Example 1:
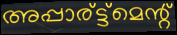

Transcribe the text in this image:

അപ്പാര്ട്ട്മെന്റ്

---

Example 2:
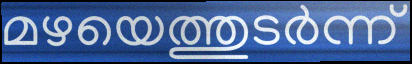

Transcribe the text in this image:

മഴയെത്തുടർന്ന്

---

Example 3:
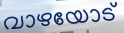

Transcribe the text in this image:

വാഴയോട്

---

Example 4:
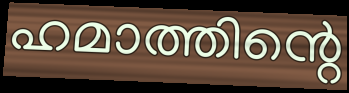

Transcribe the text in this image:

ഹമാത്തിന്റെ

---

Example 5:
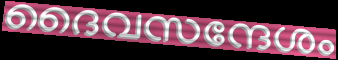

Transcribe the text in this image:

ദൈവസന്ദേശം